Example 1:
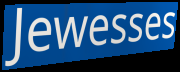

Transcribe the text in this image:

Jewesses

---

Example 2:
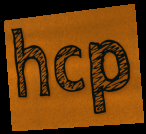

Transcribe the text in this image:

hcp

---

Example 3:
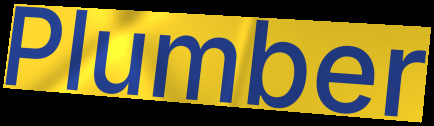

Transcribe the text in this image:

Plumber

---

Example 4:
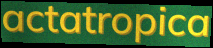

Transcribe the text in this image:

actatropica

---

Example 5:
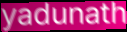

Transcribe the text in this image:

yadunath